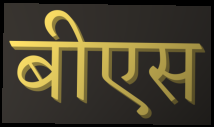
बीएस